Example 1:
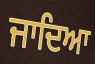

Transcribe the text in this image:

ਜਾਦਿਆ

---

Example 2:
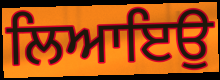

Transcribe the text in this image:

ਲਿਆਇਉ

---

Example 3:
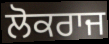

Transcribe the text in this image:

ਲੋਕਰਾਜ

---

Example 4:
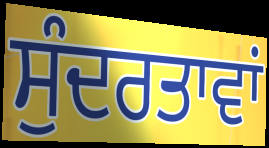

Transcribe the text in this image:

ਸੁੰਦਰਤਾਵਾਂ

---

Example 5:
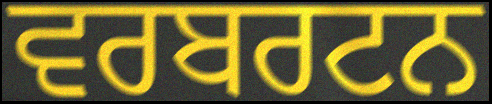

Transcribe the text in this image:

ਵਰਬਰਟਨ